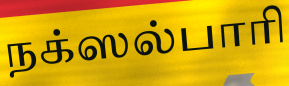
நக்ஸல்பாரி